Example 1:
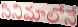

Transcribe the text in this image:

సినిమాలోనే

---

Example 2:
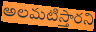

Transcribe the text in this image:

అలమటిస్తారని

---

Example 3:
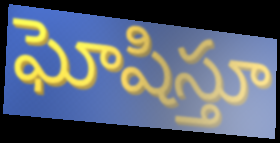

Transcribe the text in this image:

ఘోషిస్తూ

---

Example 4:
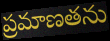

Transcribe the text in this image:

ప్రమాణతను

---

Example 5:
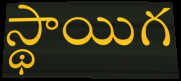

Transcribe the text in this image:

స్థాయిగ